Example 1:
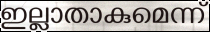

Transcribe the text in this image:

ഇല്ലാതാകുമെന്ന്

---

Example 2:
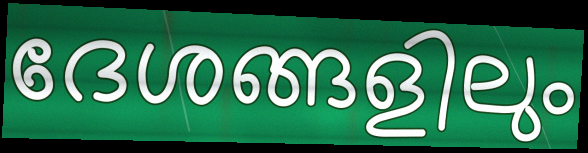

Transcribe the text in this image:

ദേശങ്ങളിലും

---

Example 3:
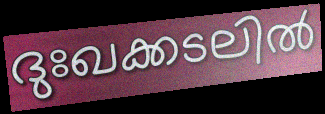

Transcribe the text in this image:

ദുഃഖക്കടലിൽ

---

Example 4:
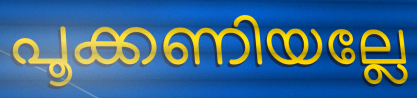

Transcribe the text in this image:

പൂക്കണിയല്ലേ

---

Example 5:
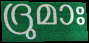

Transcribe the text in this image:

ദ്രുമാഃ